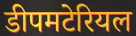
डीपमटेरियल